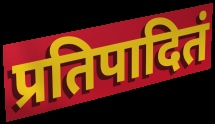
प्रतिपादितं